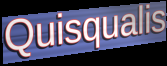
Quisqualis